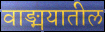
वाङ्मयातील